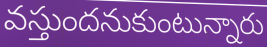
వస్తుందనుకుంటున్నారు